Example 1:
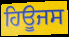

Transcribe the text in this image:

ਹਿਊਜਸ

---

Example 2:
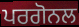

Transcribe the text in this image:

ਪਰਗੋਨਲ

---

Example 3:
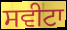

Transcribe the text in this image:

ਸਵੀਟਾ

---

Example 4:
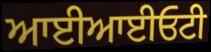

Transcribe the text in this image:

ਆਈਆਈਓਟੀ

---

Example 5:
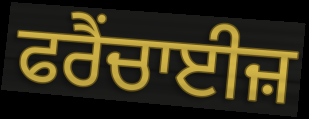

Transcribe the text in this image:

ਫਰੈਂਚਾਈਜ਼